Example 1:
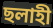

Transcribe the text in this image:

ছলাহী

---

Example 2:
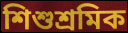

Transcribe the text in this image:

শিশুশ্ৰমিক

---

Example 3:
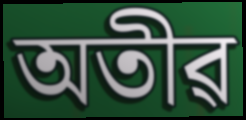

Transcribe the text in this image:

অতীৱ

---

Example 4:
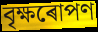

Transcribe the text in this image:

বৃক্ষৰোপণ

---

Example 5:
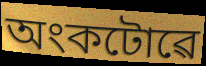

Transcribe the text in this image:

অংকটোৱে